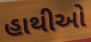
હાથીઓ